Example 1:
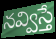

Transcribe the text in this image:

నవ్విస్తే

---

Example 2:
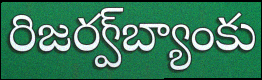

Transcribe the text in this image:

రిజర్వ్‌బ్యాంకు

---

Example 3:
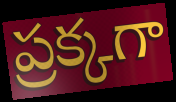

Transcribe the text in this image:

ప్రక్కగా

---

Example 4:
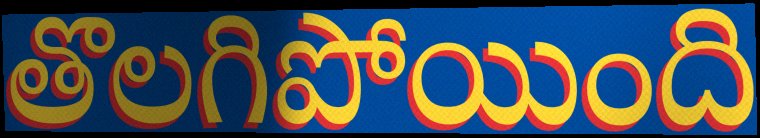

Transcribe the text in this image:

తొలగిపోయింది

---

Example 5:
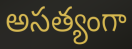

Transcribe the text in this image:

అసత్యంగా